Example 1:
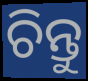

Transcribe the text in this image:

ଚିନ୍ତୁ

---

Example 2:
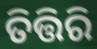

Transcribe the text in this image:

ତିତ୍ତିରି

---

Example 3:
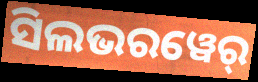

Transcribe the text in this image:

ସିଲଭରୱେର୍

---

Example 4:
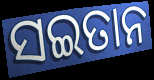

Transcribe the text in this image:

ସଇତାନ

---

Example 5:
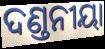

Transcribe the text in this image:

ଦଣ୍ଡନୀୟା